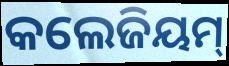
କଲେଜିୟମ୍